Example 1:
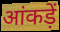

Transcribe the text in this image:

आंकड़ें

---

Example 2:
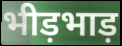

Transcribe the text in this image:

भीड़भाड़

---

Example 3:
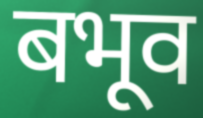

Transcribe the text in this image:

बभूव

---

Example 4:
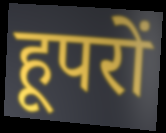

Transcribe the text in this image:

हूपरों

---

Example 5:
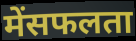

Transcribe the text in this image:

मेंसफलता